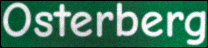
Osterberg